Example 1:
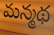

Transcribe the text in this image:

మన్మథ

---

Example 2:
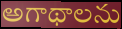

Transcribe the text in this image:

అగాథాలను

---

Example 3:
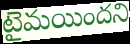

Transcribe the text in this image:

టైమయిందని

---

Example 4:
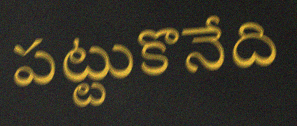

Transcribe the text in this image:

పట్టుకొనేది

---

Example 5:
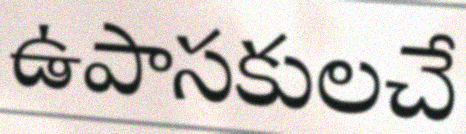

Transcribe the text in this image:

ఉపాసకులచే